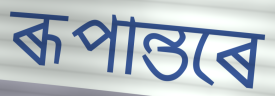
ৰূপান্তৰে